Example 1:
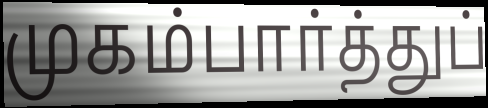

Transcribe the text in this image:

முகம்பார்த்துப்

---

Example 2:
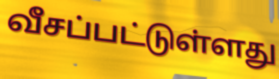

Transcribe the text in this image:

வீசப்பட்டுள்ளது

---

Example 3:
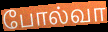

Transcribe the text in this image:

போல்வா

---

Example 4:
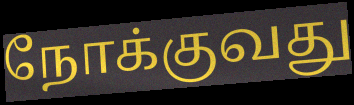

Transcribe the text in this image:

நோக்குவது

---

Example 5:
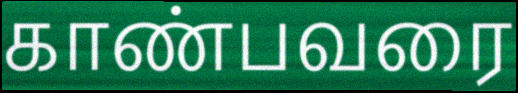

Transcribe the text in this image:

காண்பவரை